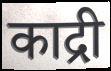
काद्री